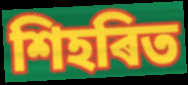
শিহৰিত